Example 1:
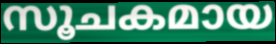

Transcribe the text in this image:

സൂചകമായ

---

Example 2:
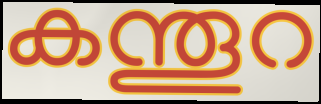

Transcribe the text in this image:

കന്തൂറ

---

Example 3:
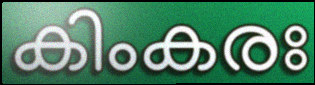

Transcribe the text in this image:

കിംകരഃ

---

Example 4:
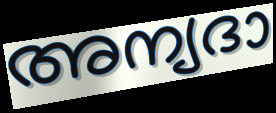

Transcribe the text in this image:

അന്യദാ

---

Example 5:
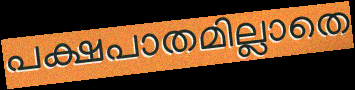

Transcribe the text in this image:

പക്ഷപാതമില്ലാതെ